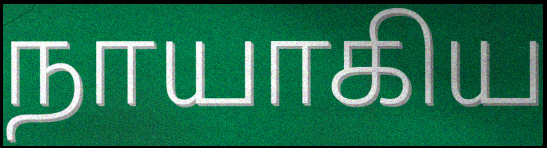
நாயாகிய